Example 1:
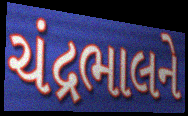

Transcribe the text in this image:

ચંદ્રભાલને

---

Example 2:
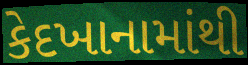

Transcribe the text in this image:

કેદખાનામાંથી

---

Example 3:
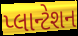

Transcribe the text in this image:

પ્લાન્ટેશન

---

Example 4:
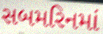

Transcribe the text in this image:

સબમરિનમાં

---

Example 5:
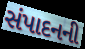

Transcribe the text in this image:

સંપાદનની